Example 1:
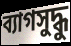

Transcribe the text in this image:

ব্যাগসুদ্ধু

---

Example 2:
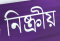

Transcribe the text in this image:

নিষ্ক্রীয়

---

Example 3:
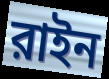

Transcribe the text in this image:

রাইন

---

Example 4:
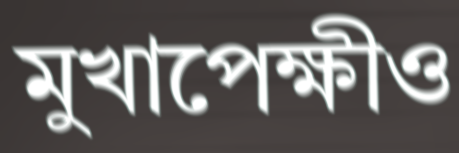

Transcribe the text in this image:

মুখাপেক্ষীও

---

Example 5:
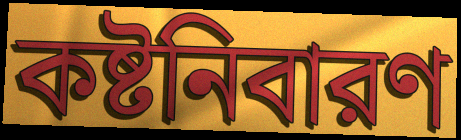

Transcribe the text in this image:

কষ্টনিবারণ